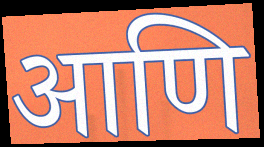
आणि